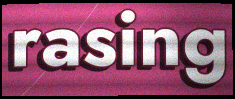
rasing